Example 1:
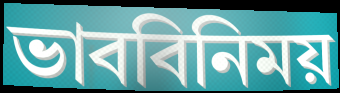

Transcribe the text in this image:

ভাববিনিময়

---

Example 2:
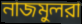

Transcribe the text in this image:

নাজমুলরা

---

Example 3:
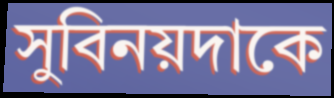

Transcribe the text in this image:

সুবিনয়দাকে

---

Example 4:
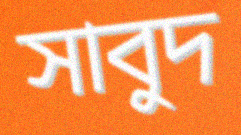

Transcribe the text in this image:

সাবুদ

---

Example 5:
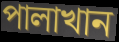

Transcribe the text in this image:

পালাখান